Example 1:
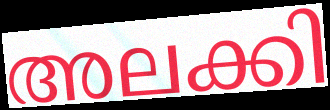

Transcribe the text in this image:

അലക്കി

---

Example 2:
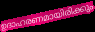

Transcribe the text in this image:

ഉദാഹരണമായിരിക്കും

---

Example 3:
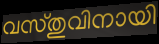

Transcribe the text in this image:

വസ്തുവിനായി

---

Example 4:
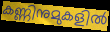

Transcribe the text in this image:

കണ്ണിനുമുകളിൽ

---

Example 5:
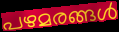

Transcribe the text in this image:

പഴമരങ്ങൾ